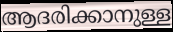
ആദരിക്കാനുള്ള